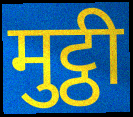
मुट्ठी